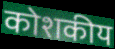
कोशकीय